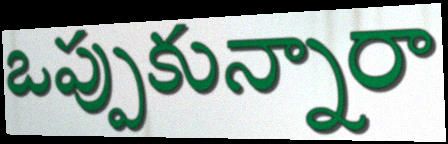
ఒప్పుకున్నారా